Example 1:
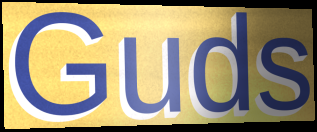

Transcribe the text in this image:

Guds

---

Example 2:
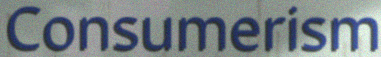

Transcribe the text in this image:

Consumerism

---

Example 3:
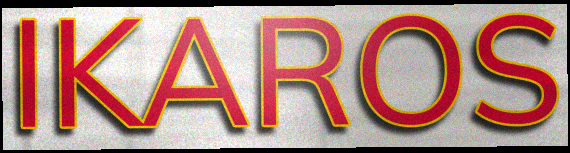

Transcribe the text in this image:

IKAROS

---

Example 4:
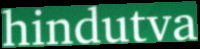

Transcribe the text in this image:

hindutva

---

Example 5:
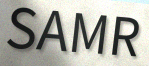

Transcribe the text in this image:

SAMR